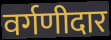
वर्गणीदार